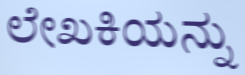
ಲೇಖಕಿಯನ್ನು